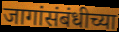
जागांसंबंधीच्या